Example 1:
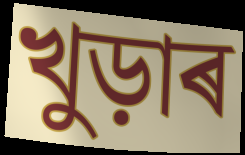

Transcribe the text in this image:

খুড়াৰ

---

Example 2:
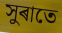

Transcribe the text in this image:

সুৰাতে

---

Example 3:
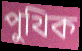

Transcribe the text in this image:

পুথিক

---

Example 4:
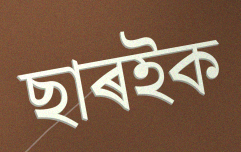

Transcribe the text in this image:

ছাৰইক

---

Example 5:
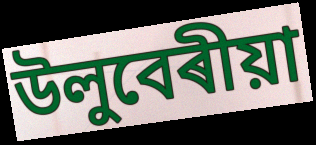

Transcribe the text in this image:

উলুবেৰীয়া